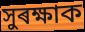
সুৰক্ষাক